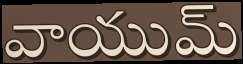
వాయుమ్